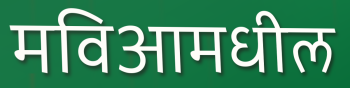
मविआमधील